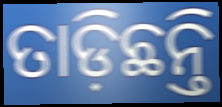
ତାଡ଼ିଛନ୍ତି